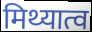
मिथ्‍यात्‍व